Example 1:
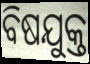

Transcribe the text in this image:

ବିଷଯୁକ୍ତ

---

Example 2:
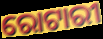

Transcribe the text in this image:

ରୋଟାରୀ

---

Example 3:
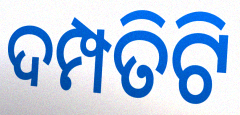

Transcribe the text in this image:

ଦମ୍ପତିଟି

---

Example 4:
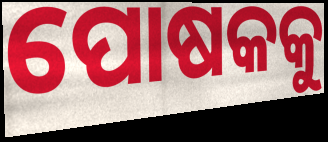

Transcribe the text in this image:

ପୋଷକକୁ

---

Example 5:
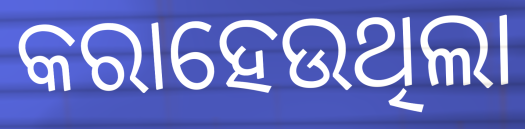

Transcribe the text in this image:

କରାହେଉଥିଲା